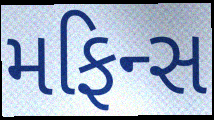
મફિન્સ